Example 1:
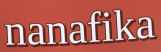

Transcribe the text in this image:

nanafika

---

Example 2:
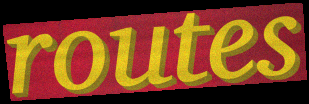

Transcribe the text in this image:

routes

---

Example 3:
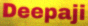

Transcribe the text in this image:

Deepaji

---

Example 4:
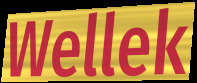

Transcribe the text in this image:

Wellek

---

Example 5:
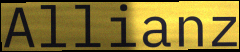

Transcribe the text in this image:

Allianz